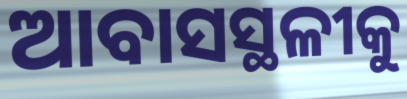
ଆବାସସ୍ଥଳୀକୁ